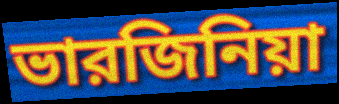
ভারজিনিয়া